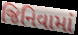
જિનિવામાં